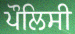
ਪੌਲਿਸੀ